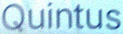
Quintus